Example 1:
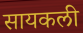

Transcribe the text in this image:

सायकली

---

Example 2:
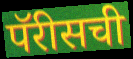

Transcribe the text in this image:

पॅरीसची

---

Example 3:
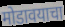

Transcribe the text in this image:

मोडावयाचा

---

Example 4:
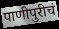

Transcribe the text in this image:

पाणीपुरीचं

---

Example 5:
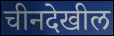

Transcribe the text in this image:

चीनदेखील